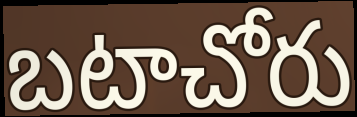
బటాచోరు